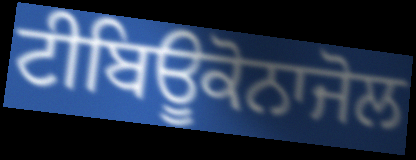
ਟੀਬਿਊਕੋਨਾਜੋਲ